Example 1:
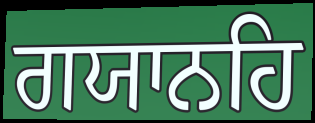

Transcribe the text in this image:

ਗਯਾਨਹਿ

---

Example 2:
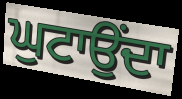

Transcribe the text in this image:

ਘੁਟਾਉਂਦਾ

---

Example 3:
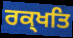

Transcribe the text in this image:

ਰਕ੍ਖਤਿ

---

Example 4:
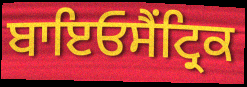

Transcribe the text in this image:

ਬਾਇਓਸੈਂਟ੍ਰਿਕ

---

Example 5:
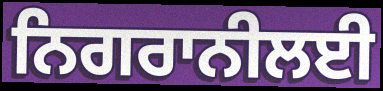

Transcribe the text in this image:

ਨਿਗਰਾਨੀਲਈ